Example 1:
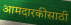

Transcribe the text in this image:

आमदारकीसाठी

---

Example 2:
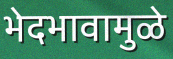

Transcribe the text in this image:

भेदभावामुळे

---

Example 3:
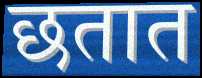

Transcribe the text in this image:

छतात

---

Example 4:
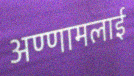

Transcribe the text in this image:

अण्णामलाई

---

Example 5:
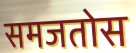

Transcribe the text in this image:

समजतोस